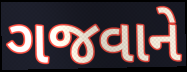
ગજવાને